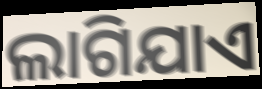
ଲାଗିଯାଏ